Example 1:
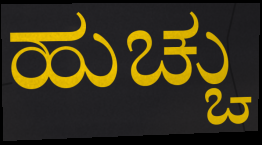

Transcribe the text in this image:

ಹುಚ್ಚು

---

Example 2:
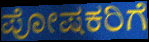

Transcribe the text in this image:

ಪೋಷಕರಿಗೆ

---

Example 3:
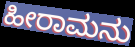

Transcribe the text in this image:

ಹೀರಾಮನು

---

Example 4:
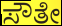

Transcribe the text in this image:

ಸೌತೇ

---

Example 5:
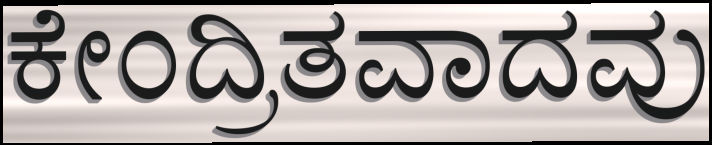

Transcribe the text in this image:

ಕೇಂದ್ರಿತವಾದವು